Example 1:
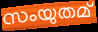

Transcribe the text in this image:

സംയുതമ്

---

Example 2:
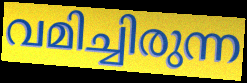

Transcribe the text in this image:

വമിച്ചിരുന്ന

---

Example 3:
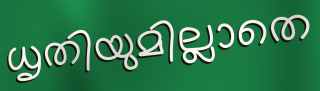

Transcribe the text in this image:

ധൃതിയുമില്ലാതെ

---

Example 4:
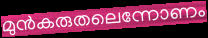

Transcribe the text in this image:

മുൻകരുതലെന്നോണം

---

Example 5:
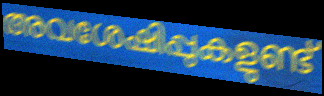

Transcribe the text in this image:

അവശേഷിപ്പുകളുണ്ട്